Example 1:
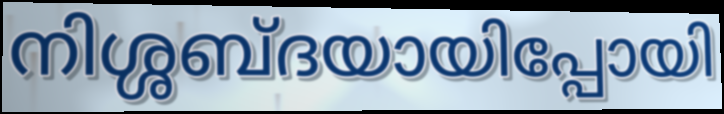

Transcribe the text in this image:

നിശ്ശബ്ദയായിപ്പോയി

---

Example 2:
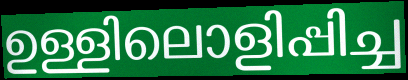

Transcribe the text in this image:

ഉള്ളിലൊളിപ്പിച്ച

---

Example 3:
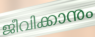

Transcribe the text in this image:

ജീവിക്കാനും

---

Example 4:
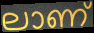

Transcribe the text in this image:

ലാണ്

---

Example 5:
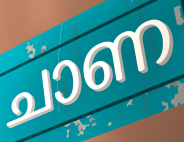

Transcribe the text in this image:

ചാണ